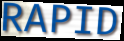
RAPID